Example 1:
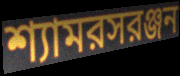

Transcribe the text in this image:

শ্যামরসরঞ্জন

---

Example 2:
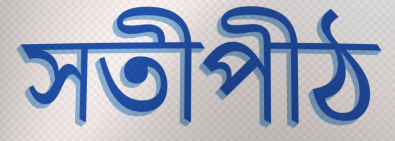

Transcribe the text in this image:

সতীপীঠ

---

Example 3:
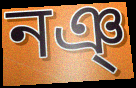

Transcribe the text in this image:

নঞ্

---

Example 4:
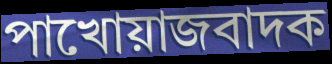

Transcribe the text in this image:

পাখোয়াজবাদক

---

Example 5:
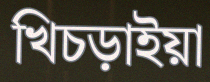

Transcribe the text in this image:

খিচড়াইয়া